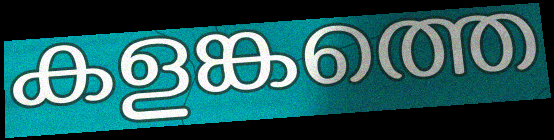
കളങ്കത്തെ